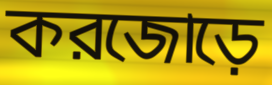
করজোড়ে